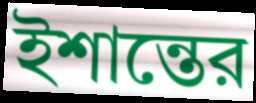
ইশান্তের